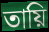
তায়ি